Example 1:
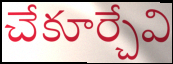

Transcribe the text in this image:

చేకూర్చేవి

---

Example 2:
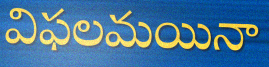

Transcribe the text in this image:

విఫలమయినా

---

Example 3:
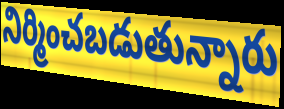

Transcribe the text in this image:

నిర్మించబడుతున్నారు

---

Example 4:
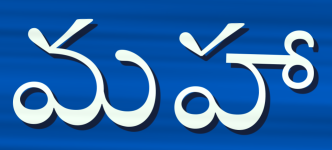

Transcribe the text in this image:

మహా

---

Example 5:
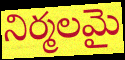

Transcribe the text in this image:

నిర్మలమై